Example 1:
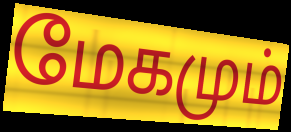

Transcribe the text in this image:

மேகமும்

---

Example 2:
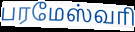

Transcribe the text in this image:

பரமேஸ்வரி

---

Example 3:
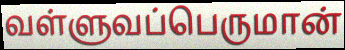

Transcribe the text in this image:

வள்ளுவப்பெருமான்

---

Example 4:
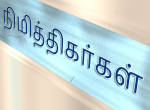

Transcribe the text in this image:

நிமித்திகர்கள்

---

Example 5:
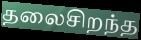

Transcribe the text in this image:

தலைசிறந்த